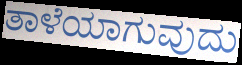
ತಾಳೆಯಾಗುವುದು